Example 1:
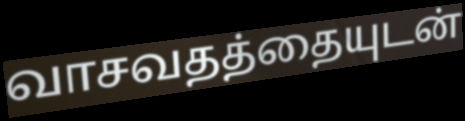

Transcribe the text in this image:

வாசவதத்தையுடன்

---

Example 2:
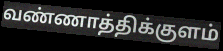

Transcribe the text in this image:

வண்ணாத்திக்குளம்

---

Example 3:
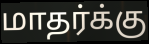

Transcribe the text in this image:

மாதர்க்கு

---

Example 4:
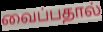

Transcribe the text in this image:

வைப்பதால்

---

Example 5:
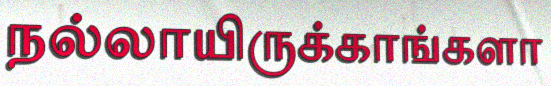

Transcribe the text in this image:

நல்லாயிருக்காங்களா